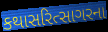
કથાસરિત્સાગરના